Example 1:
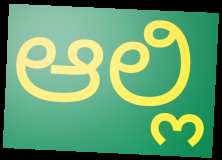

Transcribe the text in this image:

ಆಲ್ಲಿ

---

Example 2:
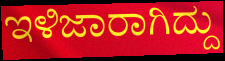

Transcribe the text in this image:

ಇಳಿಜಾರಾಗಿದ್ದು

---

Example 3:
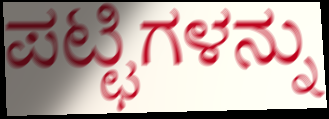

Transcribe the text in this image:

ಪಟ್ಟಿಗಳನ್ನು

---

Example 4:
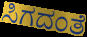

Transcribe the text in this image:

ಸಿಗದಂತೆ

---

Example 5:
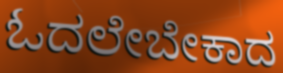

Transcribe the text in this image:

ಓದಲೇಬೇಕಾದ